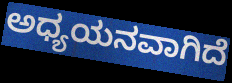
ಅಧ್ಯಯನವಾಗಿದೆ